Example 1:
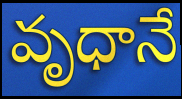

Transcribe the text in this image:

వృధానే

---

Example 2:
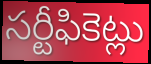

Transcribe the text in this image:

సర్టీఫికెట్లు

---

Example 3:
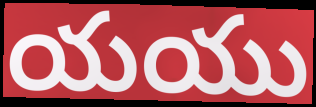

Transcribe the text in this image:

యయు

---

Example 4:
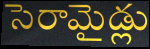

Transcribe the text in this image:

సెరామైడ్లు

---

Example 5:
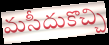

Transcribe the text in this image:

మసీదుకొచ్చి